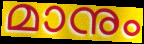
മാനും